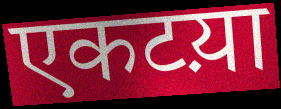
एकटय़ा